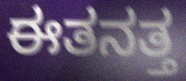
ಈತನತ್ತ